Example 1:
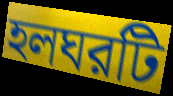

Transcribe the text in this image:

হলঘরটি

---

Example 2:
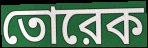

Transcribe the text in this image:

তোরেক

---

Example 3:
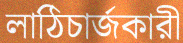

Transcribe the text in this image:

লাঠিচার্জকারী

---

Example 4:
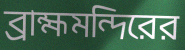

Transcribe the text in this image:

ব্রাহ্মমন্দিরের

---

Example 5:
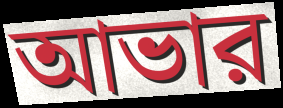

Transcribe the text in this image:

আভার